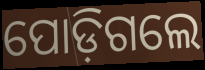
ପୋଡ଼ିଗଲେ